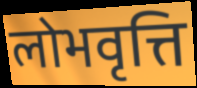
लोभवृत्ति